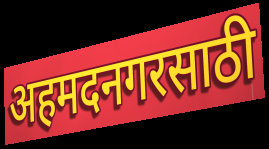
अहमदनगरसाठी